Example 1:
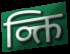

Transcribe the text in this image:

व्क्ति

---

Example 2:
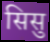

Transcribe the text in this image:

सिसु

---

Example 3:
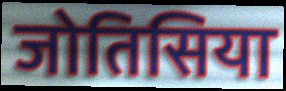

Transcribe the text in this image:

जोतिसिया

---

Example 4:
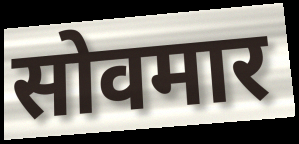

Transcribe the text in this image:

सोवमार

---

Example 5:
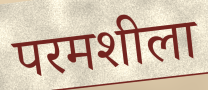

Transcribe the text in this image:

परमशीला